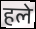
हले